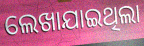
ଲେଖାଯାଇଥିଲା